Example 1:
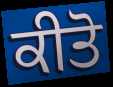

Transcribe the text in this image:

ਕੀਤੋ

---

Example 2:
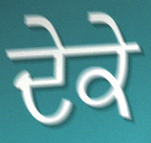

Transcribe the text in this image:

ਦੇਕੇ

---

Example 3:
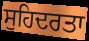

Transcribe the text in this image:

ਸੁਹਿਦਰਤਾ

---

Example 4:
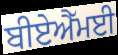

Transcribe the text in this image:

ਬੀਏਐੱਮਈ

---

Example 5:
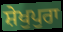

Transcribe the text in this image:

ਸ਼ੇਖੁਪੁਰਾ